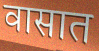
वासात